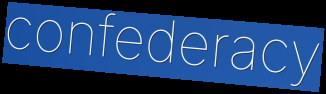
confederacy